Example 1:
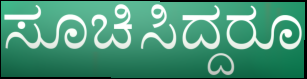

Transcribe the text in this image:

ಸೂಚಿಸಿದ್ದರೂ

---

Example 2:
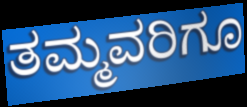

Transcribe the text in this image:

ತಮ್ಮವರಿಗೂ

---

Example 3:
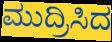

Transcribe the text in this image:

ಮುದ್ರಿಸಿದ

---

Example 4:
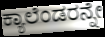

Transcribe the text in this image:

ಕ್ಯಾಲೆಂಡರನ್ನೇ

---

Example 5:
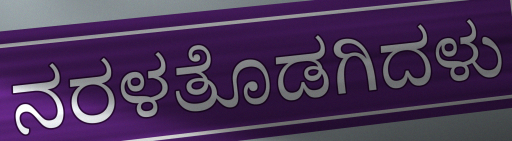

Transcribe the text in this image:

ನರಳತೊಡಗಿದಳು